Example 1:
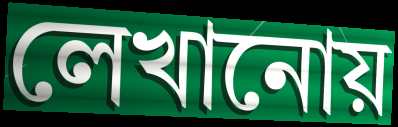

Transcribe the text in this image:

লেখানোয়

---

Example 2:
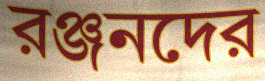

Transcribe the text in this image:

রঞ্জনদের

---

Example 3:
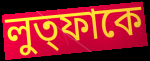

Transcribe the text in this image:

লুত্ফাকে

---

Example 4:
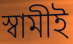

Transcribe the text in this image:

স্বামীই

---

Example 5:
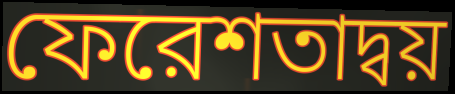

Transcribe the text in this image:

ফেরেশতাদ্বয়